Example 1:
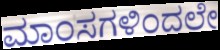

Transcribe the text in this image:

ಮಾಂಸಗಳಿಂದಲೇ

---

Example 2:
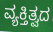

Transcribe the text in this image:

ವ್ಯಕ್ತಿತ್ವದ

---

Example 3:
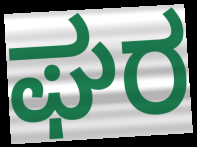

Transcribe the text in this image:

ಘರ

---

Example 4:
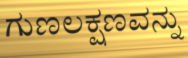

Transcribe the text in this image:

ಗುಣಲಕ್ಷಣವನ್ನು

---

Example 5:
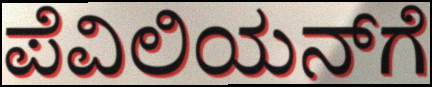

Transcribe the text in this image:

ಪೆವಿಲಿಯನ್‌ಗೆ